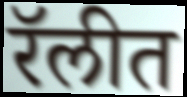
रॅलीत